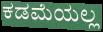
ಕಡಮೆಯಲ್ಲ